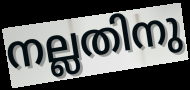
നല്ലതിനു